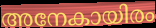
അനേകായിരം